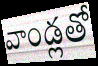
వాండ్లతో